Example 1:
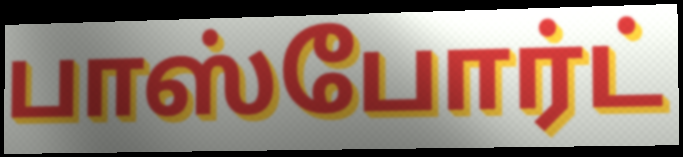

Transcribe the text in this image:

பாஸ்போர்ட்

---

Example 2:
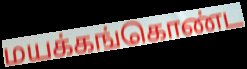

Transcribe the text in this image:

மயக்கங்கொண்ட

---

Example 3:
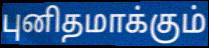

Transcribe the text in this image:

புனிதமாக்கும்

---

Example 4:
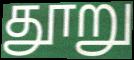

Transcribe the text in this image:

தூறு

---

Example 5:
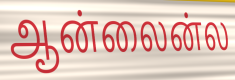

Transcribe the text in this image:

ஆன்லைன்ல